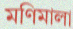
মণিমালা